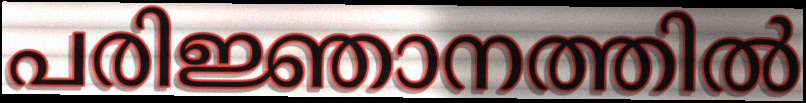
പരിജ്ഞാനത്തിൽ